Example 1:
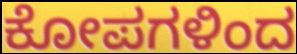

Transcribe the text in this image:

ಕೋಪಗಳಿಂದ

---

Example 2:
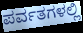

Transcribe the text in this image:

ಪರ್ವತಗಳಲ್ಲಿ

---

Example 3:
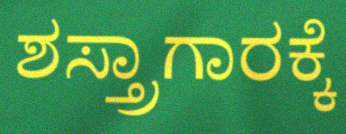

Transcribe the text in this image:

ಶಸ್ತ್ರಾಗಾರಕ್ಕೆ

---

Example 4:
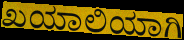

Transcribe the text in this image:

ಖಯಾಲಿಯಾಗಿ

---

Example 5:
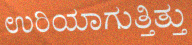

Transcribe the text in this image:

ಉರಿಯಾಗುತ್ತಿತ್ತು